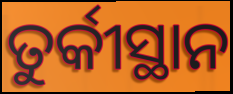
ତୁର୍କୀସ୍ଥାନ